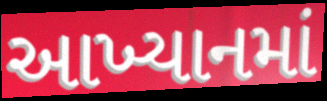
આખ્યાનમાં